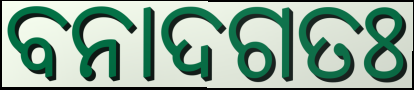
ବନାଦଗତଃ